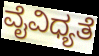
ವೈವಿಧ್ಯತೆ